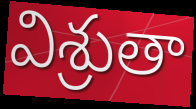
విశ్రుతా